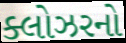
ક્લોઝરનો